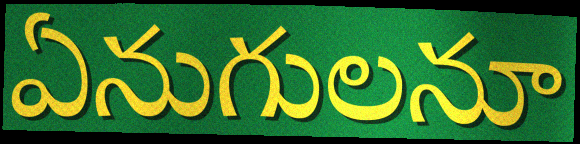
ఏనుగులనూ